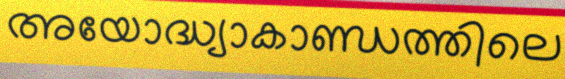
അയോദ്ധ്യാകാണ്ഡത്തിലെ